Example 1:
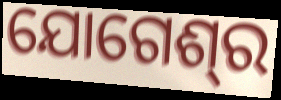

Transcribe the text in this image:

ଯୋଗେଶ୍‍ର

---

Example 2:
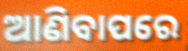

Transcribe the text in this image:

ଆଣିବାପରେ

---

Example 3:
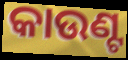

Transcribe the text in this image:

କାଉଣ୍ଟ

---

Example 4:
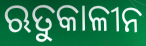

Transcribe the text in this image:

ଋତୁକାଳୀନ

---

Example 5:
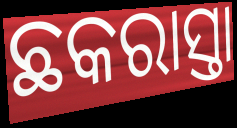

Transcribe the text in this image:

ଛକରାସ୍ତା